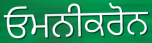
ਓਮਨੀਕਰੋਨ